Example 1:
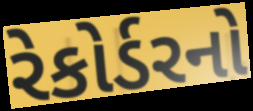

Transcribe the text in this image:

રેકોર્ડરનો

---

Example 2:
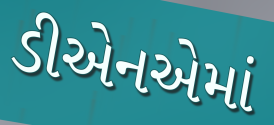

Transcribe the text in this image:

ડીએનએમાં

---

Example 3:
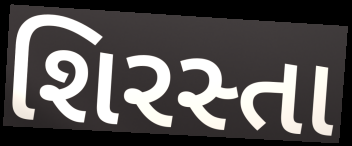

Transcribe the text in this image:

શિરસ્તા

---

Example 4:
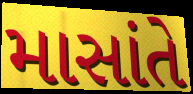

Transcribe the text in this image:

માસાંતે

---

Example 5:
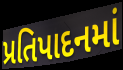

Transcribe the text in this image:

પ્રતિપાદનમાં